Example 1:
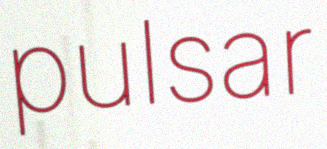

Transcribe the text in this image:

pulsar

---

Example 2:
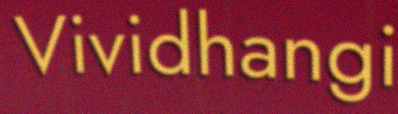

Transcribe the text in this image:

Vividhangi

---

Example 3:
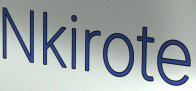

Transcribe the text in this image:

Nkirote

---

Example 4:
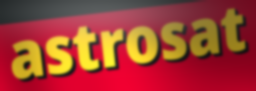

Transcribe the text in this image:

astrosat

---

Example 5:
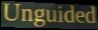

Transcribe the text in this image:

Unguided